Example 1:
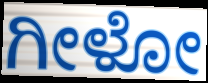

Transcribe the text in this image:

ಗೀಳೋ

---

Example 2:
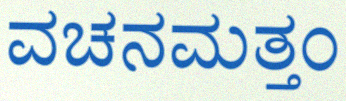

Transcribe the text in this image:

ವಚನಮತ್ತಂ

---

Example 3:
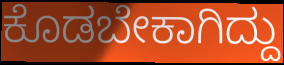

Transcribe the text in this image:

ಕೊಡಬೇಕಾಗಿದ್ದು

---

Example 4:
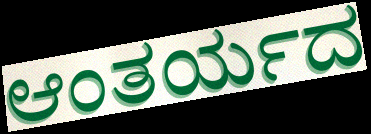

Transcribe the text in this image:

ಆಂತರ್ಯದ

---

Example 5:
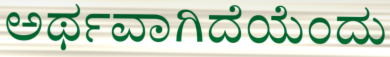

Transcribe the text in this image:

ಅರ್ಥವಾಗಿದೆಯೆಂದು